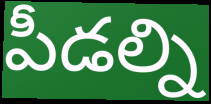
పీడల్ని